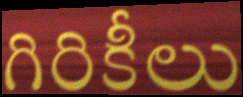
గిరికీలు